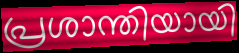
പ്രശാന്തിയായി